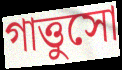
গাত্তুসো